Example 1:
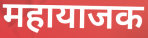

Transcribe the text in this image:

महायाजक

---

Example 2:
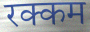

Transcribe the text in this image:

रक्कम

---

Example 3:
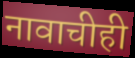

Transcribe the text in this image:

नावाचीही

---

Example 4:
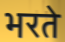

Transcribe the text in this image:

भरते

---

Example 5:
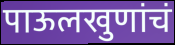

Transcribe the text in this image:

पाऊलखुणांचं